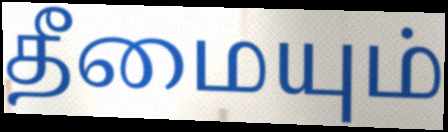
தீமையும்